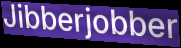
Jibberjobber